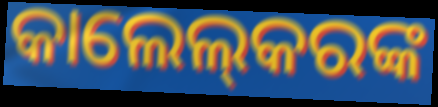
କାଲେଲ୍‌କରଙ୍କ